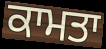
ਕਾਮਤਾ